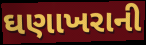
ઘણાખરાની